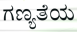
ಗಣ್ಯತೆಯ